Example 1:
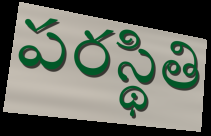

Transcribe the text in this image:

పరస్థితి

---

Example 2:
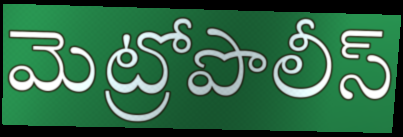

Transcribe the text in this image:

మెట్రోపొలీస్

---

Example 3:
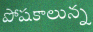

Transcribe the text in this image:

పోషకాలున్న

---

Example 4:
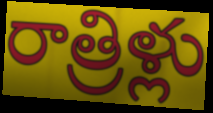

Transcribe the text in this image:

రాత్రిళ్లు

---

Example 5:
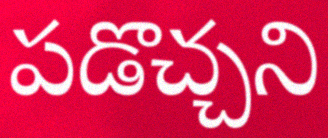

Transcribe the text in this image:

పడొచ్చని